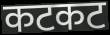
कटकट